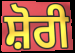
ਸ਼ੋਰੀ